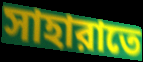
সাহারাতে